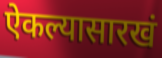
ऐकल्यासारखं